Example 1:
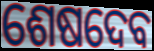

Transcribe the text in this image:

ଶେଷଦେବ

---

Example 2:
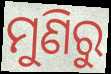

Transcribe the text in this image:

ମୁଣିରୁ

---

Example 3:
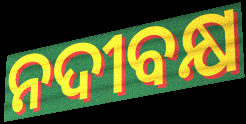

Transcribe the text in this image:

ନଦୀବକ୍ଷ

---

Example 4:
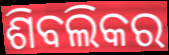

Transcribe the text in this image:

ଶିବଲିକର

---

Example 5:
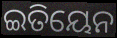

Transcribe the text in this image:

ଇତିୟେନ